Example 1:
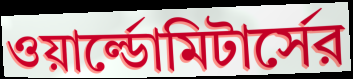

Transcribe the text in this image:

ওয়ার্ল্ডোমিটার্সের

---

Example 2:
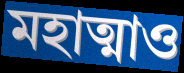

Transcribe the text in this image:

মহাত্মাও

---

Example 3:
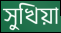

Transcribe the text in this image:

সুখিয়া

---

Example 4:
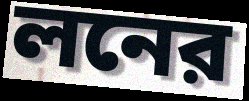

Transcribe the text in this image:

লনের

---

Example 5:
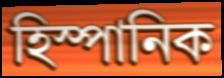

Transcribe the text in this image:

হিস্পানিক